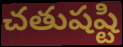
చతుషష్టి